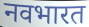
नवभारत